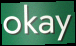
okay